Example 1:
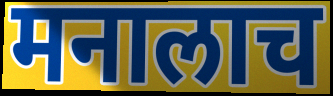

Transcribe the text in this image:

मनालाच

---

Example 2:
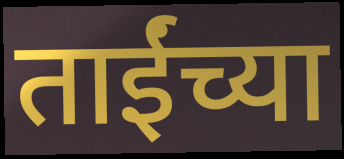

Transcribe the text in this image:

ताईंच्या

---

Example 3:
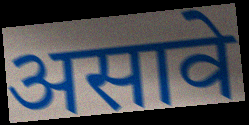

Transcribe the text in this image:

असावे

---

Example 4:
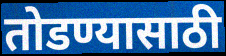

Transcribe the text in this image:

तोडण्यासाठी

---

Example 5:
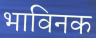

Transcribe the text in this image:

भाविनक